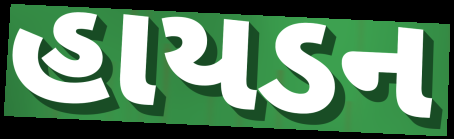
હાયડન